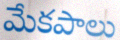
మేకపాలు